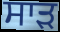
ਸਾਡ਼